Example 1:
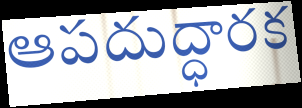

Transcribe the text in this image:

ఆపదుద్ధారక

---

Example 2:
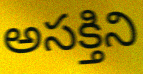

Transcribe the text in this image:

అసక్తిని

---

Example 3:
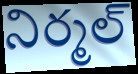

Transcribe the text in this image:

నిర్మల్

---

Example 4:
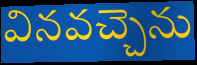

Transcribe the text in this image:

వినవచ్చెను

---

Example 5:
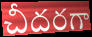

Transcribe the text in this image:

చీదరగా